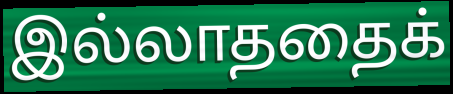
இல்லாததைக்